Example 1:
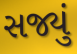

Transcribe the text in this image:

સજ્યું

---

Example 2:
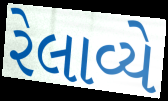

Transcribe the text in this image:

રેલાવ્યે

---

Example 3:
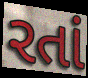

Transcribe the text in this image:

રતાં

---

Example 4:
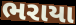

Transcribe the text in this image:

ભરાયા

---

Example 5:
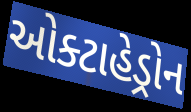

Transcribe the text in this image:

ઓક્ટાહેડ્રોન